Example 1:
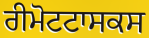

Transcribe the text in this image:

ਰੀਮੋਟਟਾਸਕਸ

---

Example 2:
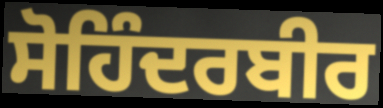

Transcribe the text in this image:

ਸੋਹਿੰਦਰਬੀਰ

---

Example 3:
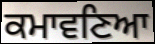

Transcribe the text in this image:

ਕਮਾਵਣਿਆ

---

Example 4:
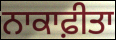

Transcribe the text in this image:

ਨਾਕਾਫ਼ੀਤਾ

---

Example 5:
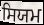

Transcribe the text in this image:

ਸਿਯਮ